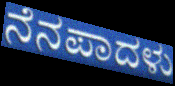
ನೆನಪಾದಳು